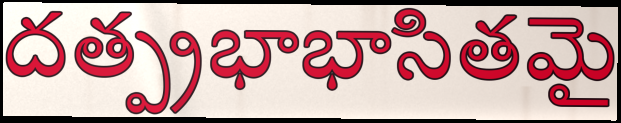
దత్ప్రభాభాసితమై